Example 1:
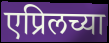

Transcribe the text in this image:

एप्रिलच्या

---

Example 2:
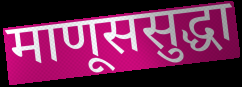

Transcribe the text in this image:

माणूससुद्धा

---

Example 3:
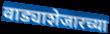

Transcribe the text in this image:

वाड्याशेजारच्या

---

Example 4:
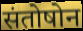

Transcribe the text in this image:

संतोषोन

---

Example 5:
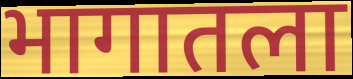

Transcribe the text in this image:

भागातला